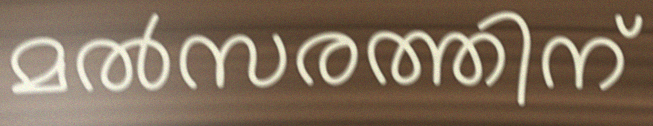
മൽസരത്തിന്